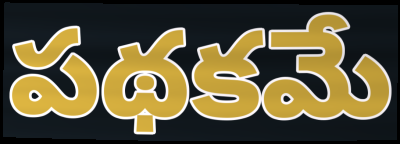
పథకమే